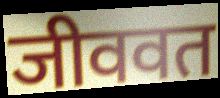
जीववत